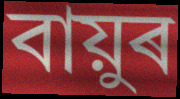
বায়ুৰ